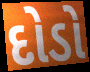
દોડો